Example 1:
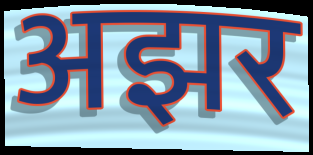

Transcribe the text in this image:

अझर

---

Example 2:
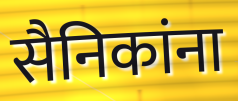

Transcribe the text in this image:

सैनिकांना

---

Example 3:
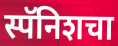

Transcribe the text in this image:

स्पॅनिशचा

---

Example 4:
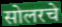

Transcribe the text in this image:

सोलरचे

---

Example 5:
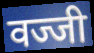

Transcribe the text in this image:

वज्जी